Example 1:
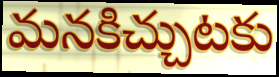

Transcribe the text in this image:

మనకిచ్చుటకు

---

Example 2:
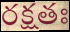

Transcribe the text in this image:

రక్షతః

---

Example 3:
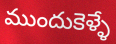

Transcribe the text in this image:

ముందుకెళ్ళే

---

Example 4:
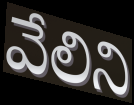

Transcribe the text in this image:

వేలిని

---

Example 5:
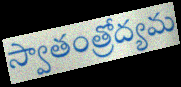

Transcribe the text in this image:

స్వాతంత్రోద్యమ